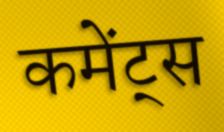
कमेंट्‌स